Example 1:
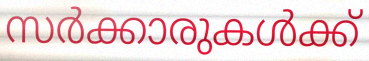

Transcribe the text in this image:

സർക്കാരുകൾക്ക്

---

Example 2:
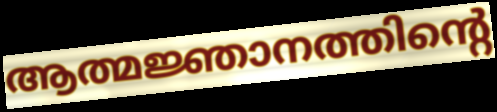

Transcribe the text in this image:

ആത്മജ്ഞാനത്തിന്റെ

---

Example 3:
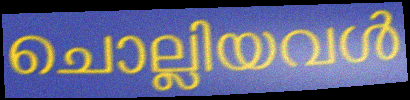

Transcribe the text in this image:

ചൊല്ലിയവൾ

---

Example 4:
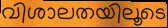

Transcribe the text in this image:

വിശാലതയിലൂടെ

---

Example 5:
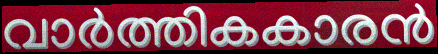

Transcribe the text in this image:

വാർത്തികകാരൻ